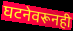
घटनेवरूनही